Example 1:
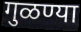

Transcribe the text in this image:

गुळण्या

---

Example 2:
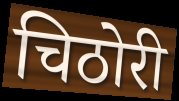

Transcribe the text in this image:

चिठोरी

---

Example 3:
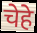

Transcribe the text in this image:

चेहे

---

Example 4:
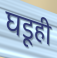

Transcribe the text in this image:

घडूही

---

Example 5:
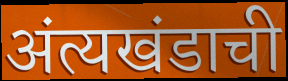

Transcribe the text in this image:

अंत्यखंडाची